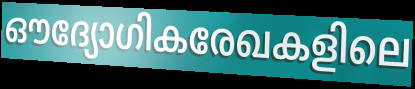
ഔദ്യോഗികരേഖകളിലെ